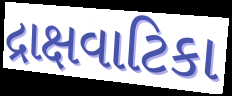
દ્રાક્ષવાટિકા